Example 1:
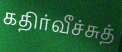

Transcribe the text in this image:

கதிர்வீச்சுத்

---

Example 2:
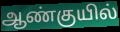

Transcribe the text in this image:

ஆண்குயில்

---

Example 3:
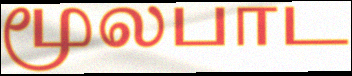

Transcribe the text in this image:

மூலபாட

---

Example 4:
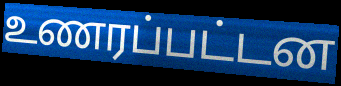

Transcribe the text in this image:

உணரப்பட்டன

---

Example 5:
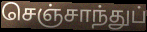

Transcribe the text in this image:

செஞ்சாந்துப்